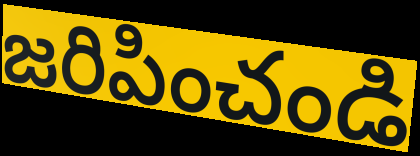
జరిపించండి